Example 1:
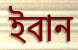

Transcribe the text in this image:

ইবান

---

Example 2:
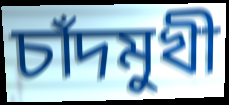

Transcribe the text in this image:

চাঁদমুখী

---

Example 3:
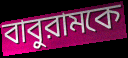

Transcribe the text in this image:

বাবুরামকে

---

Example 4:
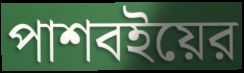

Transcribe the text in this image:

পাশবইয়ের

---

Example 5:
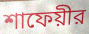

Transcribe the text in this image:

শাফেয়ীর